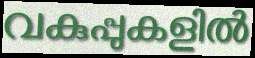
വകുപ്പുകളിൽ